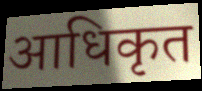
आधिकृत